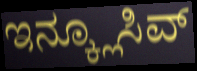
ಇನ್ಕ್ಲೂಸಿವ್